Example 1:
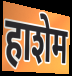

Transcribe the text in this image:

हाशेम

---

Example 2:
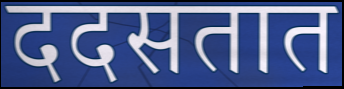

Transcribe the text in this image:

ददसतात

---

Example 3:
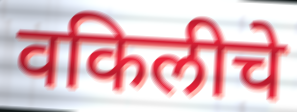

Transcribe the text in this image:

वकिलीचे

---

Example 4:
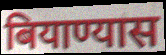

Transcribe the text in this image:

बियाण्यास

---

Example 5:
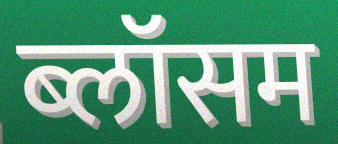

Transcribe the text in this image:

ब्लॉसम